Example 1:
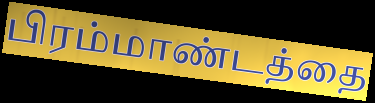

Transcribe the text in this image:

பிரம்மாண்டத்தை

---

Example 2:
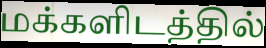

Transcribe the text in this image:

மக்களிடத்தில்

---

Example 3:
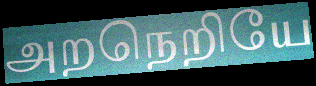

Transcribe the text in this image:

அறநெறியே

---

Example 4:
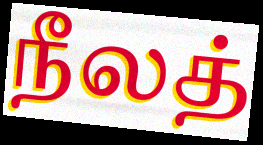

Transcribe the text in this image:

நீலத்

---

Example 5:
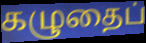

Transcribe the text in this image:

கழுதைப்